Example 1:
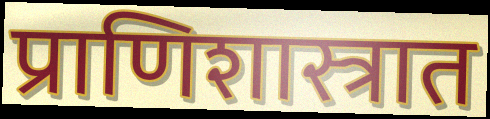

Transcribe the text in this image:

प्राणिशास्त्रात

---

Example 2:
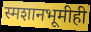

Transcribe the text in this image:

स्मशानभूमीही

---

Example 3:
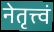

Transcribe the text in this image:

नेतृत्त्वं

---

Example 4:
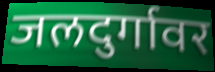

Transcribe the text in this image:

जलदुर्गावर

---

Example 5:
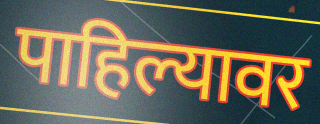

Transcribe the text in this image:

पाहिल्यावर